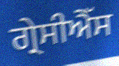
ਗ੍ਰੇਸੀਐੱਸ